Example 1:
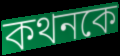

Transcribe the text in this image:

কথনকে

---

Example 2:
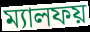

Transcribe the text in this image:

ম্যালফয়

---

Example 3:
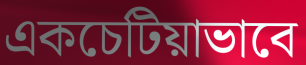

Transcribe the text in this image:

একচেটিয়াভাবে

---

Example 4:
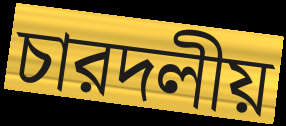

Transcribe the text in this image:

চারদলীয়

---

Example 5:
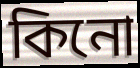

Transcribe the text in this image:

কিনো